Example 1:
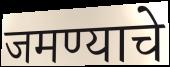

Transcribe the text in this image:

जमण्याचे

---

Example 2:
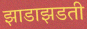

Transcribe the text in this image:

झाडाझडती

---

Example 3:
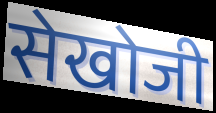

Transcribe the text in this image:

सेखोजी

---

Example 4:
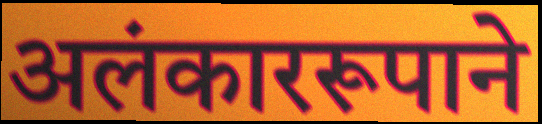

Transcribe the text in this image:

अलंकाररूपाने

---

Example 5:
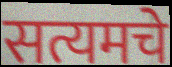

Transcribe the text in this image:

सत्यमचे